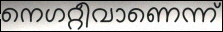
നെഗറ്റീവാണെന്ന്